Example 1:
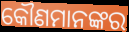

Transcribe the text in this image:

କୌଣମାନଙ୍କର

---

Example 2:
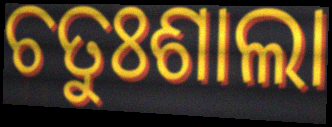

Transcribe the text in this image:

ଚତୁଃଶାଲା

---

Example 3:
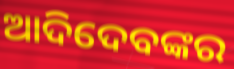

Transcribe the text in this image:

ଆଦିଦେବଙ୍କର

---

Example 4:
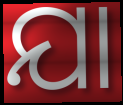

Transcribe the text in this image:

ଯା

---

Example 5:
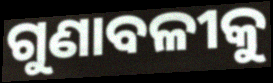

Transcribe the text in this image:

ଗୁଣାବଳୀକୁ